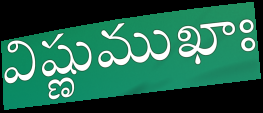
విష్ణుముఖాః